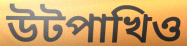
উটপাখিও